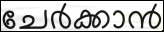
ചേർക്കാൻ